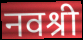
नवश्री